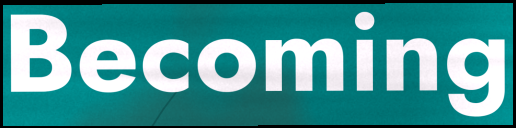
Becoming